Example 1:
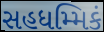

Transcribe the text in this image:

સહધમ્મિકં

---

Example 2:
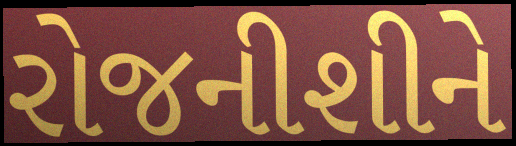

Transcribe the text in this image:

રોજનીશીને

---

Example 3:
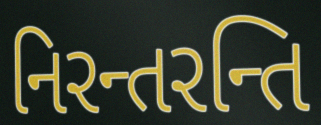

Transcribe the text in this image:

નિરન્તરન્તિ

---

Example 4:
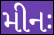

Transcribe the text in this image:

મીનઃ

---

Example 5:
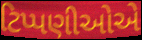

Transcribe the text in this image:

ટિપ્પણીઓએ